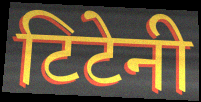
टिटेनी